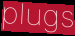
plugs